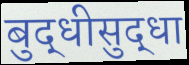
बुद्धीसुद्धा